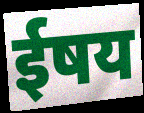
ईषय